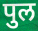
पुल